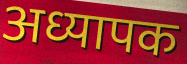
अध्‍यापक